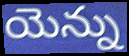
యెన్ను